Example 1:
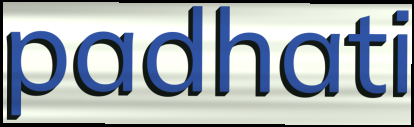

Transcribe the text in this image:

padhati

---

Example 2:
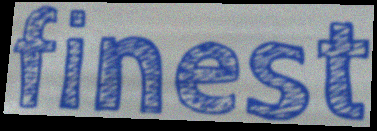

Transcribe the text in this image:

finest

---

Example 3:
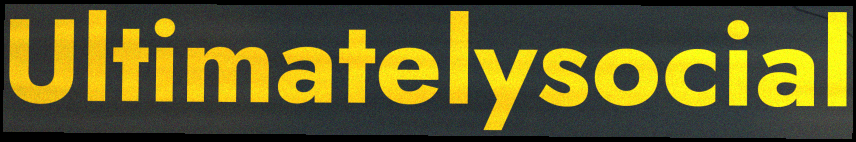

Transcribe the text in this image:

Ultimatelysocial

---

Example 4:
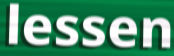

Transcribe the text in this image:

lessen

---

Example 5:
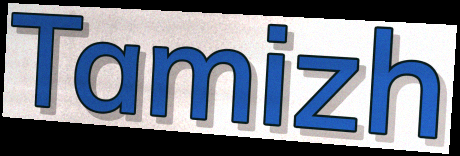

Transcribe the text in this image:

Tamizh